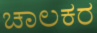
ಚಾಲಕರ